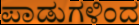
ಪಾಡುಗಳಿಂದ